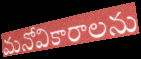
మనోవికారాలను